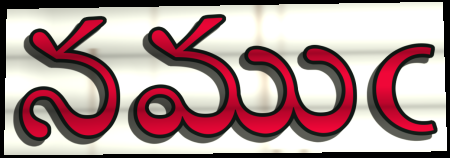
నముఁ